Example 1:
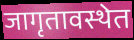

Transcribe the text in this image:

जागृतावस्थेत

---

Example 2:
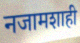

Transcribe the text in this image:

नजामशाही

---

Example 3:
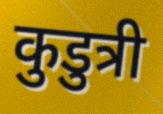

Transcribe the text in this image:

कुडुत्री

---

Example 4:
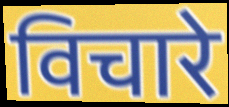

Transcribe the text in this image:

विचारे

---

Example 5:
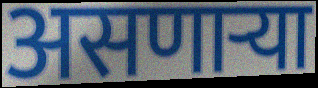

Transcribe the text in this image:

असणाऱ्या